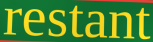
restant